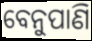
ବେନୁପାଣି